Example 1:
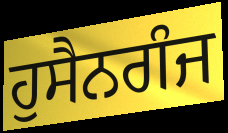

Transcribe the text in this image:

ਹੁਸੈਨਗੰਜ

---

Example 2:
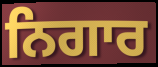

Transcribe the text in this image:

ਨਿਗਾਰ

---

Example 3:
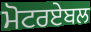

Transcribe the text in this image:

ਮੋਟਰਏਬਲ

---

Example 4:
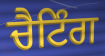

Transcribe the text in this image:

ਚੈਟਿੰਗ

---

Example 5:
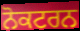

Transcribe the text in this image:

ਨੋਕਟਰਨ